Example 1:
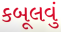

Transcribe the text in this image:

કબૂલવું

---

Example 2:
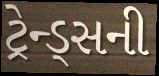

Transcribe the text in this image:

ટ્રેન્ડ્સની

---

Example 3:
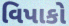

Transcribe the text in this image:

વિપાકો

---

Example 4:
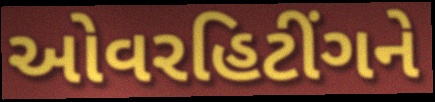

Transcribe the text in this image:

ઓવરહિટીંગને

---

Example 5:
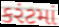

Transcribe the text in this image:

કરંટમાં